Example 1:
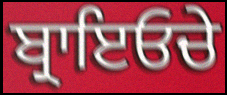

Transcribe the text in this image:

ਬ੍ਰਾਇਓਚੇ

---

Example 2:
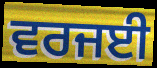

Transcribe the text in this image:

ਵਰਜਈ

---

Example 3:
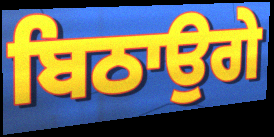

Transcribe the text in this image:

ਬਿਠਾਉਗੇ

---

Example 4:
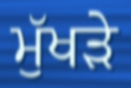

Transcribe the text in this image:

ਮੁੱਖੜੇ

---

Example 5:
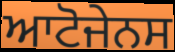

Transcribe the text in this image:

ਆਟੋਜੇਨਸ